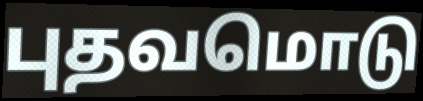
புதவமொடு